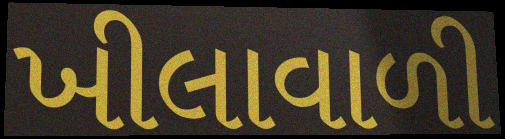
ખીલાવાળી